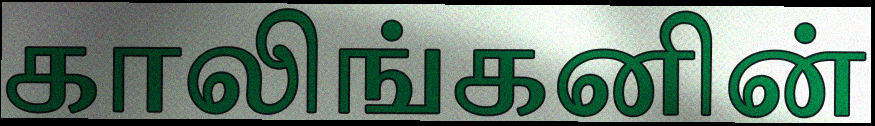
காலிங்கனின்